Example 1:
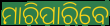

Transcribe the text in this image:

ମାରିପାରିବେ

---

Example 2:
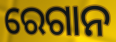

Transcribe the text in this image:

ରେଗାନ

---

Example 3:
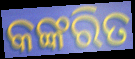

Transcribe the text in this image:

କଙ୍କରିତ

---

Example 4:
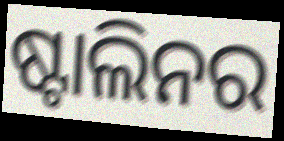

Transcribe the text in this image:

ଷ୍ଟାଲିନର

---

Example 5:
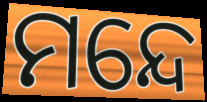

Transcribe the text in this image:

ମନ୍ଦେ